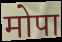
मोपा